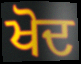
ਖੋਦ